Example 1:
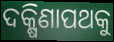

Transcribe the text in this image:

ଦକ୍ଷିଣାପଥକୁ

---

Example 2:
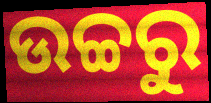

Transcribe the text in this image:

ଉଚ୍ଚରୁ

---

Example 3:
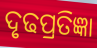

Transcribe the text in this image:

ଦୃଢପ୍ରତିଜ୍ଞା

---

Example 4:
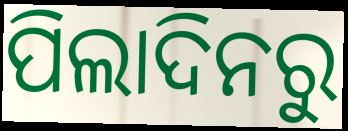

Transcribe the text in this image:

ପିଲାଦିନରୁ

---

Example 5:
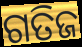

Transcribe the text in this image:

ଗତିଜ